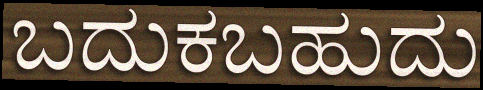
ಬದುಕಬಹುದು